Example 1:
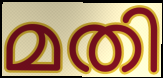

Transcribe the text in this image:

മതി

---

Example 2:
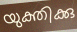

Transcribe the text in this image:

യുക്തിക്കു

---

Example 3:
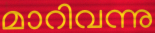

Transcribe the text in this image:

മാറിവന്നു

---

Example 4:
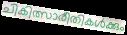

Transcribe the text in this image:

ചികിത്സാരീതികൾക്കും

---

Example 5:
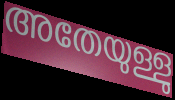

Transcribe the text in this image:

അതേയുള്ളു